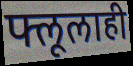
फ्लूलाही